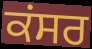
ਕਂਸਰ